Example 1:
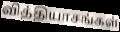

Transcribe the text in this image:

வித்தியாசங்கள்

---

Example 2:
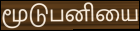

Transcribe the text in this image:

மூடுபனியை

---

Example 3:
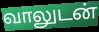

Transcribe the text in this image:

வாலுடன்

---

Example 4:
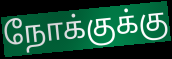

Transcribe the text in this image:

நோக்குக்கு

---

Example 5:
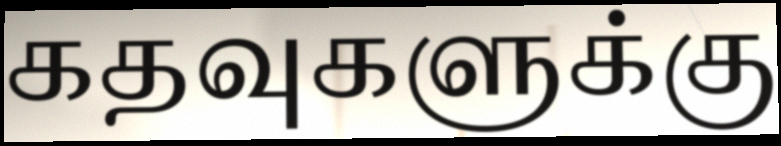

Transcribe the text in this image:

கதவுகளுக்கு